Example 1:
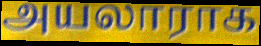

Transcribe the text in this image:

அயலாராக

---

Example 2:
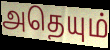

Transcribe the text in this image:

அதெயும்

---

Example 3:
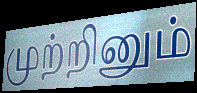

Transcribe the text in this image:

முற்றினும்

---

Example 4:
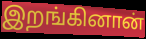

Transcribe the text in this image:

இறங்கினான்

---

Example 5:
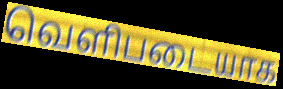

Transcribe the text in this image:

வெளிபடையாக